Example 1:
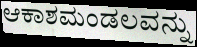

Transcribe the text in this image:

ಆಕಾಶಮಂಡಲವನ್ನು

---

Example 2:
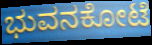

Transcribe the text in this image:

ಭುವನಕೋಟೆ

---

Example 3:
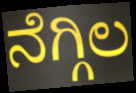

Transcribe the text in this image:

ನೆಗ್ಗಿಲ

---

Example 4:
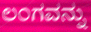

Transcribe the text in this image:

ಲಂಗವನ್ನು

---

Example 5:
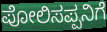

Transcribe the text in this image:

ಪೋಲಿಸಪ್ಪನಿಗೆ